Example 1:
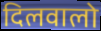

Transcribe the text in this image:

दिलवालो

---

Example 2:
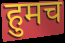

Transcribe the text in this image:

हुमच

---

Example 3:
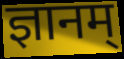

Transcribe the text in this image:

ज्ञानम्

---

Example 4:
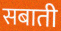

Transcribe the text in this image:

सबाती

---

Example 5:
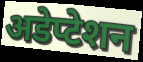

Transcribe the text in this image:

अडेप्टेशन